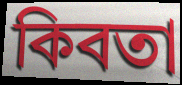
কিবতা